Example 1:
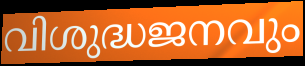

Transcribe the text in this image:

വിശുദ്ധജനവും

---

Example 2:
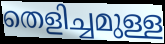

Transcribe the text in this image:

തെളിച്ചമുള്ള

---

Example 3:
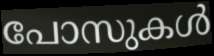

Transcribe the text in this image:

പോസുകൾ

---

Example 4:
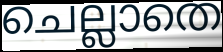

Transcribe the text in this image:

ചെല്ലാതെ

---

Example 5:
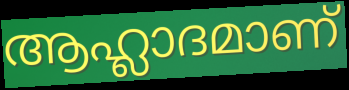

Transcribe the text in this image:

ആഹ്ലാദമാണ്